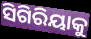
ସିଗିରିୟାକୁ